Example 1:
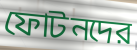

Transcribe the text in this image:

ফোটনদের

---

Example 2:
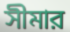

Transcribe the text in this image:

সীমার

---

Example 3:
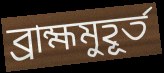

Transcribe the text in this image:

ব্রাহ্মমুহূর্ত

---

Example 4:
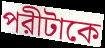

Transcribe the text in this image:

পরীটাকে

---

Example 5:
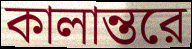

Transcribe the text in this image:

কালান্তরে